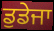
ਡੁਡੇਜਾ